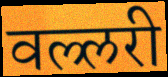
वल्लरी